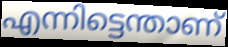
എന്നിട്ടെന്താണ്